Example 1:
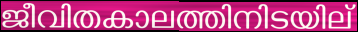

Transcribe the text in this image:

ജീവിതകാലത്തിനിടയില്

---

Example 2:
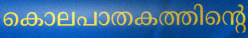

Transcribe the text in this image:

കൊലപാതകത്തിന്റെ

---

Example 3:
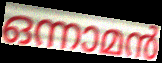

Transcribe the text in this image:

ഒന്നാമൻ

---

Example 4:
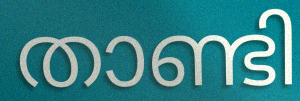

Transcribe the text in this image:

താണ്ടി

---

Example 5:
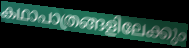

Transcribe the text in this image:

കഥാപാത്രങ്ങളിലേക്കും